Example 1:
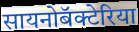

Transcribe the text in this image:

सायनोबॅक्टेरिया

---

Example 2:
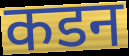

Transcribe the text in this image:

कडन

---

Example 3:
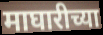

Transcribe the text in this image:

माघारीच्या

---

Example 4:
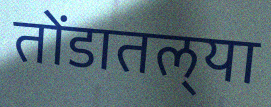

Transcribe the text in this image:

तोंडातल्या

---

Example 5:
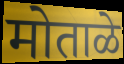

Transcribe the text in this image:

मोताळे